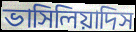
ভাসিলিয়াদিস